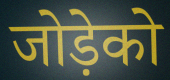
जोड़ेको